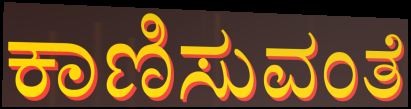
ಕಾಣಿಸುವಂತೆ